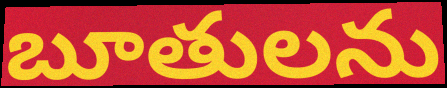
బూతులను